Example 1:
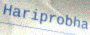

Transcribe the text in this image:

Hariprobha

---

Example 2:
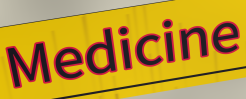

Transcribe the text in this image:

Medicine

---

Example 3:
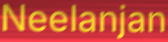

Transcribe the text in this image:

Neelanjan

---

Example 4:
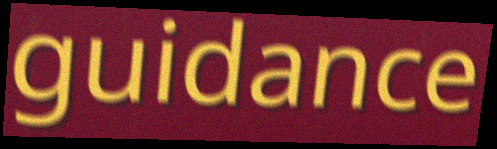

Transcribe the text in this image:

guidance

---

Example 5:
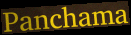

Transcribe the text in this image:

Panchama